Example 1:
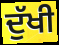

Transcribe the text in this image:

ਦੁੱਖੀ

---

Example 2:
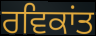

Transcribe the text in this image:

ਰਵਿਕਾਂਤ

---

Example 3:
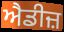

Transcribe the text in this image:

ਐਡੀਜ਼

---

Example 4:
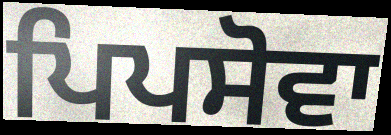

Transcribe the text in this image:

ਪਿਪਸੋਵਾ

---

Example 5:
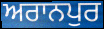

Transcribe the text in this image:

ਅਰਾਨਪੁਰ